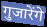
गुजारेंगे